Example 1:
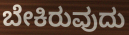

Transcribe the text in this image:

ಬೇಕಿರುವುದು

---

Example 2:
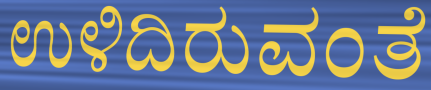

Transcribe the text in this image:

ಉಳಿದಿರುವಂತೆ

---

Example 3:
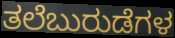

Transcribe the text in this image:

ತಲೆಬುರುಡೆಗಳ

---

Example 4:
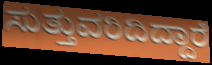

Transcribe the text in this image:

ಸುತ್ತುವರಿದಿದ್ದಾರೆ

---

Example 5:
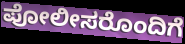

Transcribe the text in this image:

ಪೋಲೀಸರೊಂದಿಗೆ